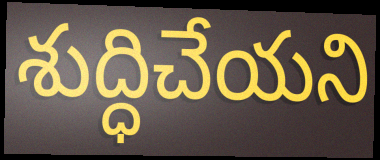
శుద్ధిచేయని